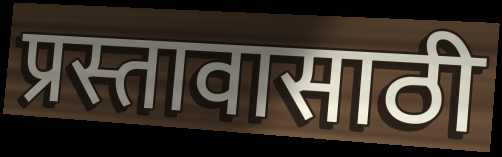
प्रस्तावासाठी